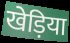
खेड़िया